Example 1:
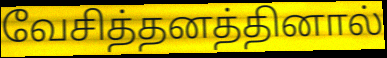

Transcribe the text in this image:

வேசித்தனத்தினால்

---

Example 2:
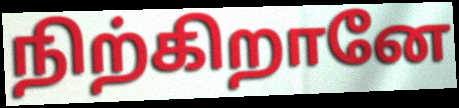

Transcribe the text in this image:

நிற்கிறானே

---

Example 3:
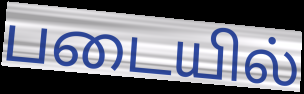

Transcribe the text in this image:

படையில்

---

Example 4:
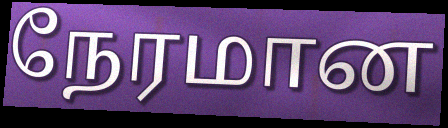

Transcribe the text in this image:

நேரமான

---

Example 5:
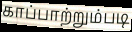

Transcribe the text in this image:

காப்பாற்றும்படி